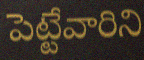
పెట్టేవారిని